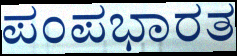
ಪಂಪಭಾರತ